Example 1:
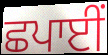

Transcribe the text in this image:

ਛਪਾਈਂ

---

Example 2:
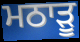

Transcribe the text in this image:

ਮਠਾੜੂ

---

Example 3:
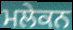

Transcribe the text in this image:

ਮਲੇਕਨ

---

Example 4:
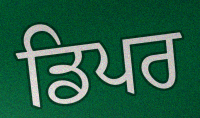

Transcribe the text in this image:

ਡਿਪਰ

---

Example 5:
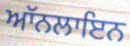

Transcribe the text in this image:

ਆੱਨਲਾਇਨ